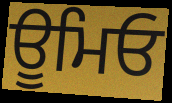
ਊਮਿਓ